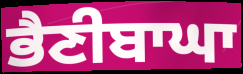
ਭੈਣੀਬਾਘਾ